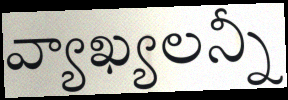
వ్యాఖ్యలన్నీ